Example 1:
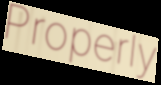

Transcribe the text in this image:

Properly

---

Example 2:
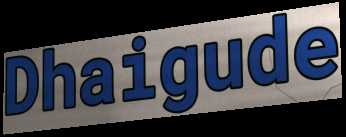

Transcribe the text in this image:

Dhaigude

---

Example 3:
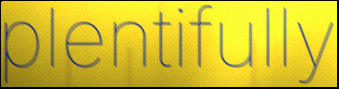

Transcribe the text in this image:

plentifully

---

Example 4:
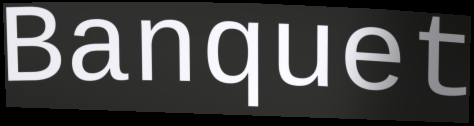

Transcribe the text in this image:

Banquet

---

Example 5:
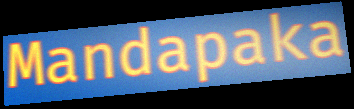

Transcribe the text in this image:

Mandapaka